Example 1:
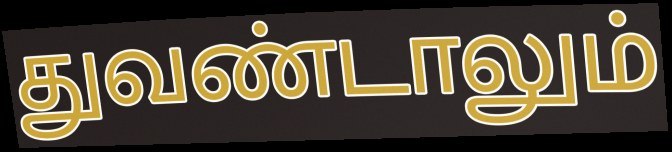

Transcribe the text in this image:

துவண்டாலும்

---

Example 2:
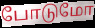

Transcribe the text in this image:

போடுமோ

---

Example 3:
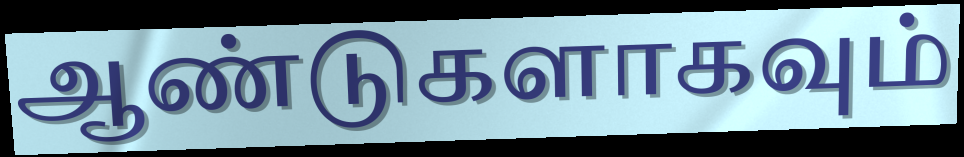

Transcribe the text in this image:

ஆண்டுகளாகவும்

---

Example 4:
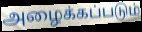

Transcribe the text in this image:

அழைக்கப்படும்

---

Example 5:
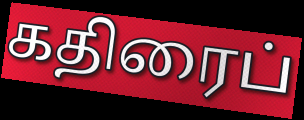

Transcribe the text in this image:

கதிரைப்